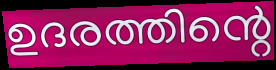
ഉദരത്തിന്റെ